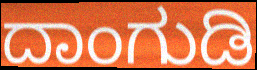
ದಾಂಗುಡಿ